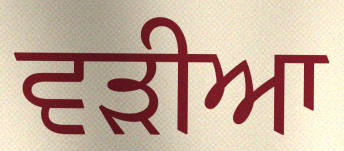
ਵੜੀਆ